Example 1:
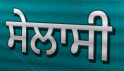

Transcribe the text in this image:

ਸੇਲਾਸੀ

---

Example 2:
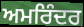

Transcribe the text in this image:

ਅਮਰਿੰਦਰ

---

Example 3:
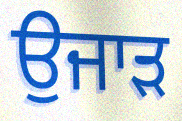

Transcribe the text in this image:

ਉਜਾੜ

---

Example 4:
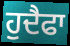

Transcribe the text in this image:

ਹੁਦੈਫਾ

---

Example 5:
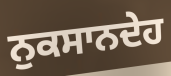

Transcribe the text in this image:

ਨੁਕਸਾਨਦੇਹ